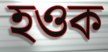
হওক